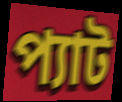
প্যাট